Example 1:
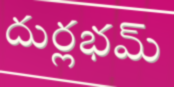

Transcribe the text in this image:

దుర్లభమ్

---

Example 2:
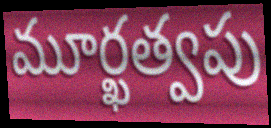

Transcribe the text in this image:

మూర్ఖత్వపు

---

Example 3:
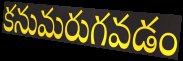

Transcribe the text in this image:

కనుమరుగవడం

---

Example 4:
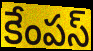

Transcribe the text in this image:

కేంపస్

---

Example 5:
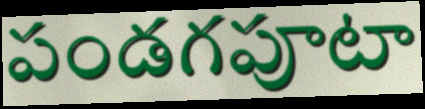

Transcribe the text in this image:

పండగపూటా